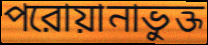
পরোয়ানাভুক্ত